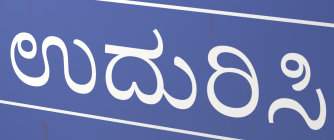
ಉದುರಿಸಿ